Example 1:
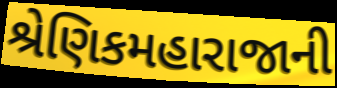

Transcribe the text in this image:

શ્રેણિકમહારાજાની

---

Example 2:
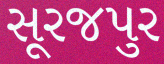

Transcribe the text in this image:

સૂરજપુર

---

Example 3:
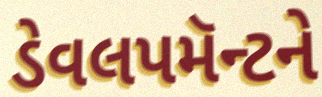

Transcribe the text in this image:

ડેવલપમૅન્ટને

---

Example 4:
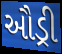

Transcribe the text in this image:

ઔડ્રી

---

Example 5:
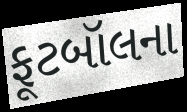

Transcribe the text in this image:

ફૂટબૉલના